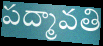
పద్మావతి